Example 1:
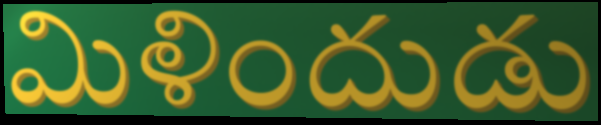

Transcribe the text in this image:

మిళిందుడు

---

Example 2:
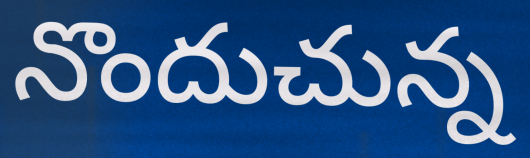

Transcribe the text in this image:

నొందుచున్న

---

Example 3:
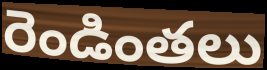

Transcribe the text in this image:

రెండింతలు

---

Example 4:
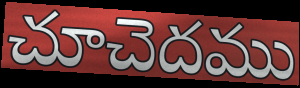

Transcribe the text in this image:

చూచెదము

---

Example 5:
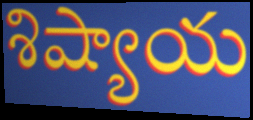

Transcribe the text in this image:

శిష్యాయ